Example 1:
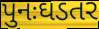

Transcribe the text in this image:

પુનઃઘડતર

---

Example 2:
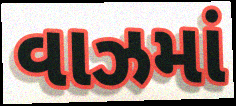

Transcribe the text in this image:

વાઝમાં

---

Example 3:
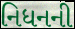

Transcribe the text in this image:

નિધનની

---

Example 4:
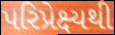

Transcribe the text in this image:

પરિપ્રેક્ષ્યથી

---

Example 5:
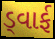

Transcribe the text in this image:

ડ્વાર્ફ